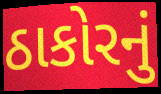
ઠાકોરનું